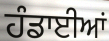
ਹੰਡਾਈਆਂ